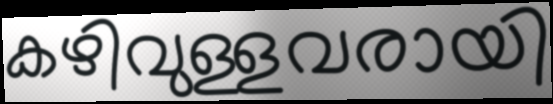
കഴിവുള്ളവരായി